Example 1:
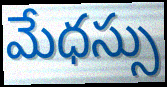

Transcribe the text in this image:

మేధస్సు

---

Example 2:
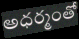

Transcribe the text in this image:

అధర్మంతో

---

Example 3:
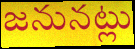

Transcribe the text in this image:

జనునట్లు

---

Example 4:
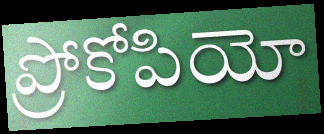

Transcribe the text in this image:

ప్రోకోపియో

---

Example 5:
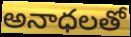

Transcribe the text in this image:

అనాధలతో